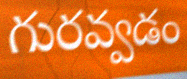
గురవ్వడం